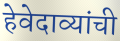
हेवेदाव्यांची